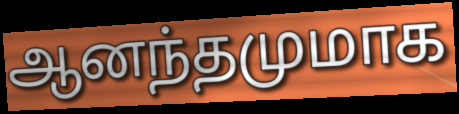
ஆனந்தமுமாக